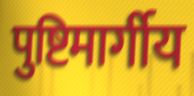
पुष्टिमार्गीय